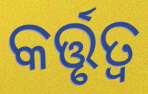
କର୍ତ୍ତୃତ୍ୱ